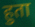
हुता